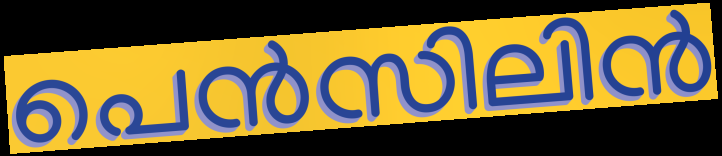
പെൻസിലിൻ